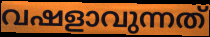
വഷളാവുന്നത്